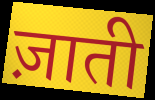
ज़ाती